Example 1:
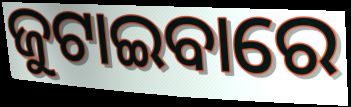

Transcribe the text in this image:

ଜୁଟାଇବାରେ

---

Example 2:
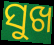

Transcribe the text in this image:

ସୁଖ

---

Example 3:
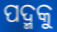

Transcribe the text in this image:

ପଦ୍ମକୁ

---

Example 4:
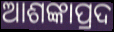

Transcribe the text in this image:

ଆଶଙ୍କାପ୍ରଦ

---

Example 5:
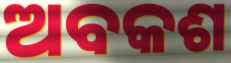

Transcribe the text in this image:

ଅବକଶ